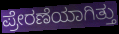
ಪ್ರೇರಣೆಯಾಗಿತ್ತು